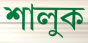
শালুক